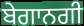
ਬੇਗਾਨਗੀ